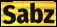
Sabz